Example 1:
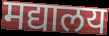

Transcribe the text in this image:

मद्यालय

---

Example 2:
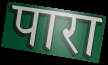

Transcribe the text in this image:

पारा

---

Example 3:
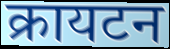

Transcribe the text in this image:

क्रायटन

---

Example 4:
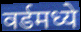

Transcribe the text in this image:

वर्डमध्ये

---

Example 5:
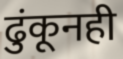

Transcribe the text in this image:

ढुंकूनही